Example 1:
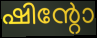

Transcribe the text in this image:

ഷിന്റോ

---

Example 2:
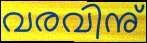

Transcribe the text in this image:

വരവിനു്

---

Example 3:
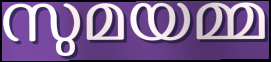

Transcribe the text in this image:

സുമയമ്മ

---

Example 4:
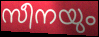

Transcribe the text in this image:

സീനയും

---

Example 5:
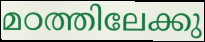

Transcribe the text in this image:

മഠത്തിലേക്കു